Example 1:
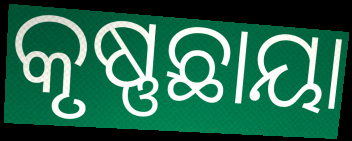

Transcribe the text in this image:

କୃଷ୍ଣଛାୟା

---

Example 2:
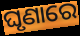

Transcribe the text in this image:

ଘୃଣାରେ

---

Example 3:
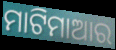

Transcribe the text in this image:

ମାଟିମାଆର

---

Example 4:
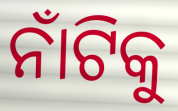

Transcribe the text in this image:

ନାଁଟିକୁ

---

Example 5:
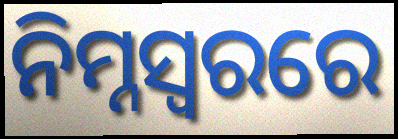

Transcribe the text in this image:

ନିମ୍ନସ୍ୱରରେ